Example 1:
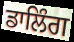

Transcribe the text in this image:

ਡਾਲਿੰਗ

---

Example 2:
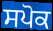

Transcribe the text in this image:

ਸਪੋਕ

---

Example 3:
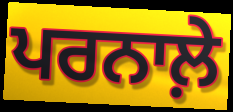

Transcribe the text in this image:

ਪਰਨਾਲ਼ੇ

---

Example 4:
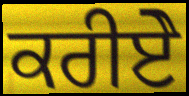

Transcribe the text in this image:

ਕਰੀਏੇ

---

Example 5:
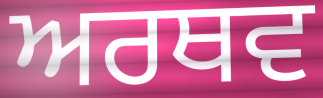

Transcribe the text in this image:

ਅਰਥਵ